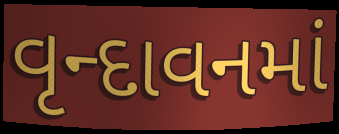
વૃન્દાવનમાં